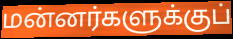
மன்னர்களுக்குப்